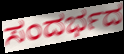
ಸಂದರ್ಭದ